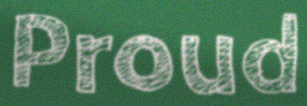
Proud